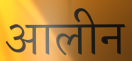
आलीन